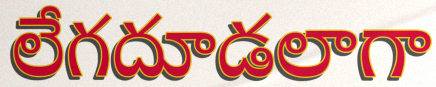
లేగదూడలాగా